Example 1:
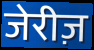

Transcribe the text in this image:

जेरीज़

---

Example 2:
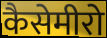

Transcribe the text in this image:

कैसेमीरो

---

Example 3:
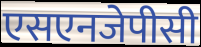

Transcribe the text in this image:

एसएनजेपीसी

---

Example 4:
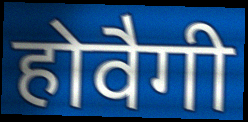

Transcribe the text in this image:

होवैगी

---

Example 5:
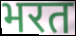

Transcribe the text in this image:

भरत